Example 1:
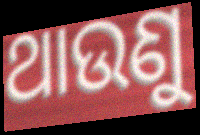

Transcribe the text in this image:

ଥାଉଣୁ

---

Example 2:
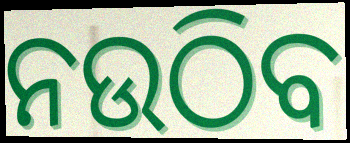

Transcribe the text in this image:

ନଉଠିବ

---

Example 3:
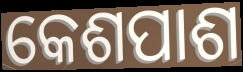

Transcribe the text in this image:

କେଶପାଶ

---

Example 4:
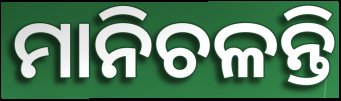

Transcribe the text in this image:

ମାନିଚଳନ୍ତି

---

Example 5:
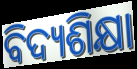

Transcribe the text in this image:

ବିଦ୍ୟଶିକ୍ଷା